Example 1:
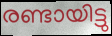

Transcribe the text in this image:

രണ്ടായിട്ടു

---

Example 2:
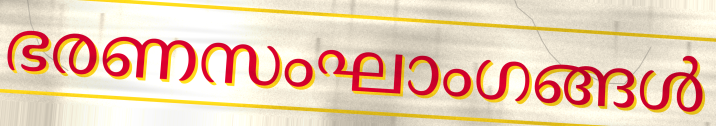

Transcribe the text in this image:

ഭരണസംഘാംഗങ്ങൾ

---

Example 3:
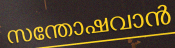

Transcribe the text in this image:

സന്തോഷവാൻ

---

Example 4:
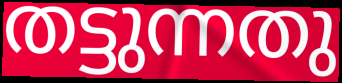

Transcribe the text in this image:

തട്ടുന്നതു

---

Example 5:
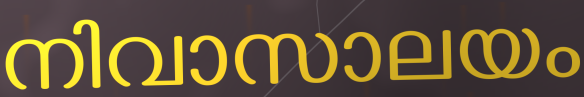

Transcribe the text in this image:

നിവാസാലയം